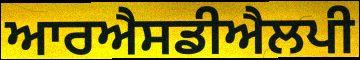
ਆਰਐਸਡੀਐਲਪੀ